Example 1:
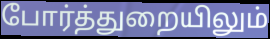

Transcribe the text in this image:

போர்த்துறையிலும்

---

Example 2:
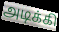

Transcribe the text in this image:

அடிக்கி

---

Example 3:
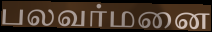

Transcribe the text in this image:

பலவர்மனை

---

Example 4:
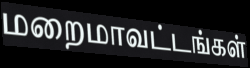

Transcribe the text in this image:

மறைமாவட்டங்கள்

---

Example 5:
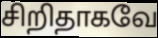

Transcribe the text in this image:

சிறிதாகவே